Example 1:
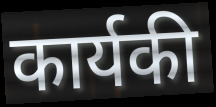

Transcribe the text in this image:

कार्यकी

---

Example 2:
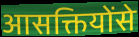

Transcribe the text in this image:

आसक्तियोंसे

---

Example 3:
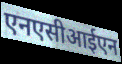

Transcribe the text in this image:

एनएसीआईएन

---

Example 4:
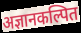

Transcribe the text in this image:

अज्ञानकल्पित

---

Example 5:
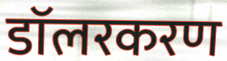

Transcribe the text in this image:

डॉलरकरण